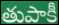
తుపాకీ